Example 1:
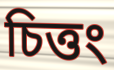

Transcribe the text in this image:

চিত্তং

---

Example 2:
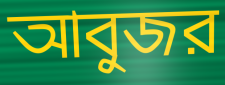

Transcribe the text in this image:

আবুজর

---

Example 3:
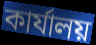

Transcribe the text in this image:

কার্যালয়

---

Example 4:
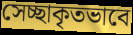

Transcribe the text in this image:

সেচ্ছাকৃতভাবে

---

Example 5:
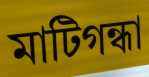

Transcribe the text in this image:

মাটিগন্ধা